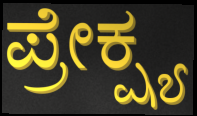
ಪ್ರೇಕ್ಷ್ಯ